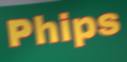
Phips